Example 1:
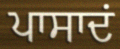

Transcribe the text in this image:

ਪਾਸਾਦਂ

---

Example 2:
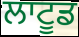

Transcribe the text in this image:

ਲਾਟੂਡ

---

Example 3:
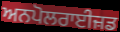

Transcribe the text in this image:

ਅਨਪੋਲਰਾਈਜ਼ਡ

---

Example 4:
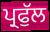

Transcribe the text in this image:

ਪ੍ਰਫੁੱਲ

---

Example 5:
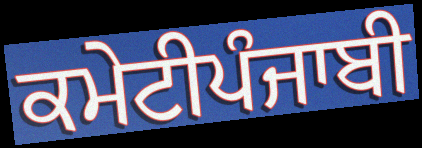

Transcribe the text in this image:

ਕਮੇਟੀਪੰਜਾਬੀ